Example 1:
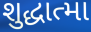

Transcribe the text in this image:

શુદ્ધાત્મા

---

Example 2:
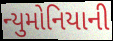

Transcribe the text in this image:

ન્યુમોનિયાની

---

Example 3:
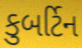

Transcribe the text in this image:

કુબર્ટિન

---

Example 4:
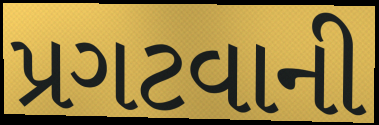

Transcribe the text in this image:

પ્રગટવાની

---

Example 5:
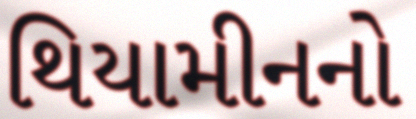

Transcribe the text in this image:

થિયામીનનો